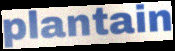
plantain